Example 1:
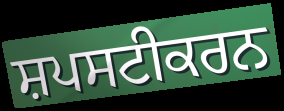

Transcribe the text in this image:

ਸ਼ਪਸਟੀਕਰਨ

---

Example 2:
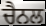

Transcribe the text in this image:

ਚੈਨਲ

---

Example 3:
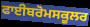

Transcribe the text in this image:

ਫਾਈਬਰੋਮਸਕੂਲਰ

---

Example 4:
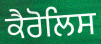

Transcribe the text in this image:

ਕੈਰੋਲਿਸ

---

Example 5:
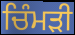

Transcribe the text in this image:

ਚਿੰਮੜੀ